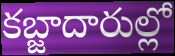
కబ్జాదారుల్లో